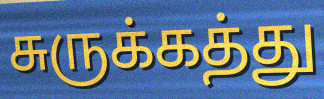
சுருக்கத்து